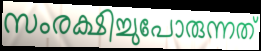
സംരക്ഷിച്ചുപോരുന്നത്